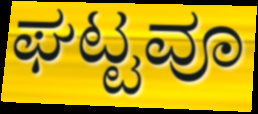
ಘಟ್ಟವೂ